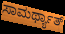
ಸಾಮರ್ಥ್ಯಾತ್